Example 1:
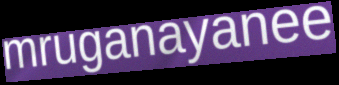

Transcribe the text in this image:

mruganayanee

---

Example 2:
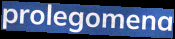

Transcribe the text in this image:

prolegomena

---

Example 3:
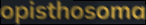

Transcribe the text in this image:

opisthosoma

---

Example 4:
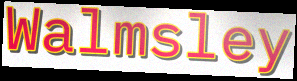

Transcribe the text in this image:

Walmsley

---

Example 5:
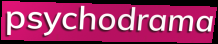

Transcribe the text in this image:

psychodrama